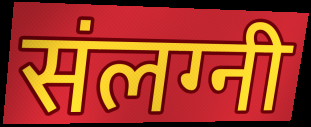
संलग्नी